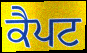
ਕੈਪਟ